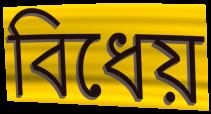
বিধেয়